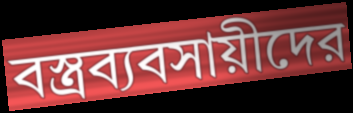
বস্ত্রব্যবসায়ীদের